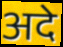
अदे